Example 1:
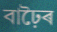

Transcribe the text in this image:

বাঢ়ৈৰ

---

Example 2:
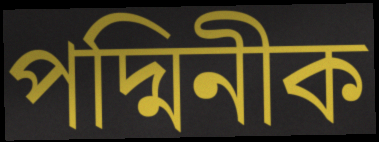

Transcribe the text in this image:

পদ্মিনীক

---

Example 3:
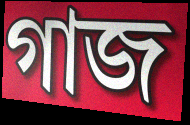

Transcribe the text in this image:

গাজ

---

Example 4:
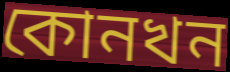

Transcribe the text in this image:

কোনখন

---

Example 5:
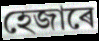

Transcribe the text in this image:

হেজাৰে